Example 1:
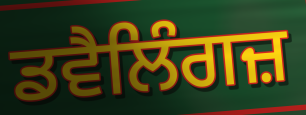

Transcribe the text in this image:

ਡਵੈਲਿੰਗਜ਼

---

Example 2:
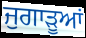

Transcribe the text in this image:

ਜੁਗਾੜੂਆਂ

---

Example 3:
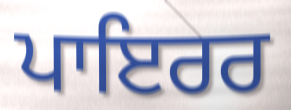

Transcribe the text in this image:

ਪਾਇਰਰ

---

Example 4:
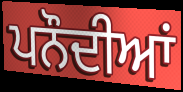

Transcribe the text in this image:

ਪਨੌਦੀਆਂ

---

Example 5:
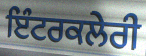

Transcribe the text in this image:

ਇੰਟਰਕਲੇਰੀ